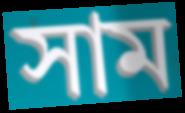
সাম